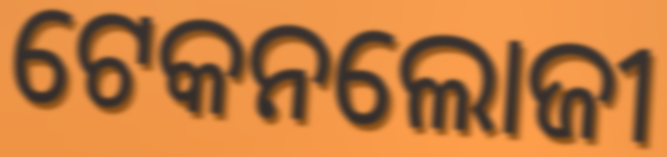
ଟେକନଲୋଜୀ